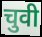
चुवी